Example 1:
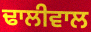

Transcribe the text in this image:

ਢਾਲੀਵਾਲ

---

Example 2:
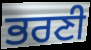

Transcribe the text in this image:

ਭਰਣੀ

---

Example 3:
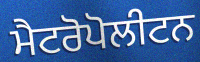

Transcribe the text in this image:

ਮੈਟਰੋਪੋਲੀਟਨ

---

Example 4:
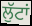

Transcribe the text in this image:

ਲੁੱਟਾਂ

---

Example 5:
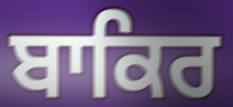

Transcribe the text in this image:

ਬਾਕਿਰ